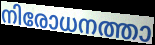
നിരോധനത്താ